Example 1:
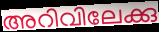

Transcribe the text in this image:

അറിവിലേക്കു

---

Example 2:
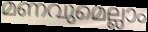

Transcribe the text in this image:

മണവുമെല്ലാം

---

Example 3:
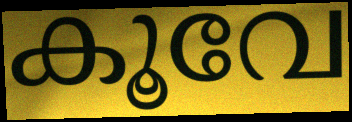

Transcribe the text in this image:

കൂവേ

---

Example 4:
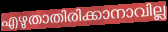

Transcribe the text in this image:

എഴുതാതിരിക്കാനാവില്ല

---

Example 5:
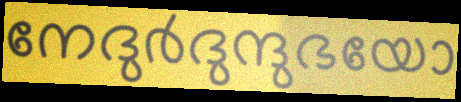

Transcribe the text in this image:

നേദുർദുന്ദുഭയോ